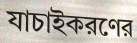
যাচাইকরণের